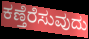
ಕಣ್ತೆರೆಸುವುದು